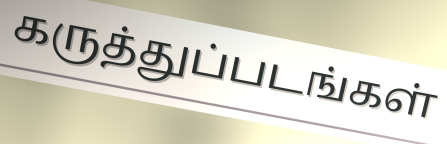
கருத்துப்படங்கள்